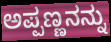
ಅಪ್ಪಣ್ಣನನ್ನು